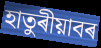
হাতুৰীয়াবৰ